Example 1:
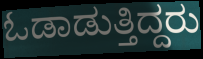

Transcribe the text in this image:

ಓಡಾಡುತ್ತಿದ್ದರು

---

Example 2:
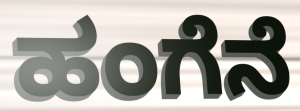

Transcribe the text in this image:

ಹಂಗೆನೆ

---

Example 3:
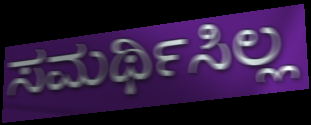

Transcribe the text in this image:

ಸಮರ್ಥಿಸಿಲ್ಲ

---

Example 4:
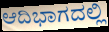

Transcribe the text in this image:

ಆದಿಭಾಗದಲ್ಲಿ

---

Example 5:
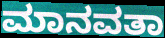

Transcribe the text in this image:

ಮಾನವತಾ